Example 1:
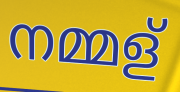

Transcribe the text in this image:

നമ്മള്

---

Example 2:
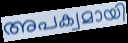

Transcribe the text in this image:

അപക്വമായി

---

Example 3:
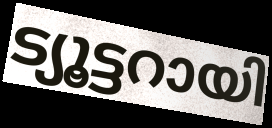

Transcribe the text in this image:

ട്യൂട്ടറായി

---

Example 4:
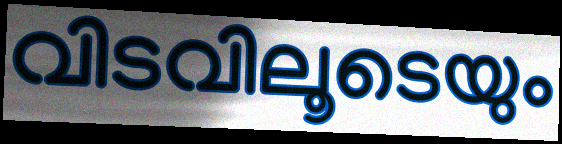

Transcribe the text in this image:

വിടവിലൂടെയും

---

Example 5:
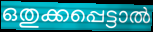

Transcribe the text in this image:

ഒതുക്കപ്പെട്ടാൽ